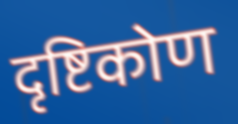
दृष्टिकोण